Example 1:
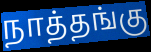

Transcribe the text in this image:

நாத்தங்கு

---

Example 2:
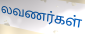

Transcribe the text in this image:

லவணர்கள்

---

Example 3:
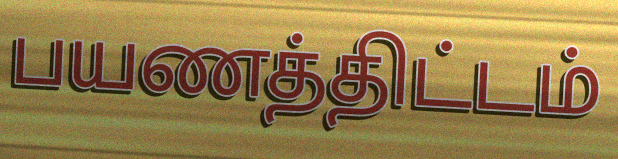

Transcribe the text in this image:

பயணத்திட்டம்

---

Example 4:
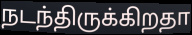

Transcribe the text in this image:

நடந்திருக்கிறதா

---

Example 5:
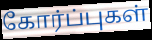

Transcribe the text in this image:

கோர்ப்புகள்